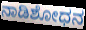
ನಾಡಿಶೋಧನ